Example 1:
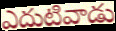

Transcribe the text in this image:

ఎదుటివాడు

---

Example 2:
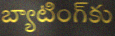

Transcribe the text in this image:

బ్యాటింగ్‌కు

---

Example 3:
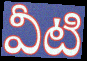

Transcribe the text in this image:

వీటి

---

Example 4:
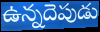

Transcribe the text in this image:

ఉన్నదెపుడు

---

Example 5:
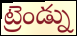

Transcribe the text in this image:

ట్రెండ్ను